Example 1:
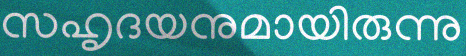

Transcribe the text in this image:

സഹൃദയനുമായിരുന്നു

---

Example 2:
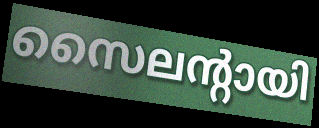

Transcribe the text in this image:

സൈലന്റായി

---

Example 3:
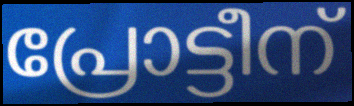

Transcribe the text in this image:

പ്രോട്ടീന്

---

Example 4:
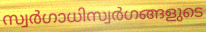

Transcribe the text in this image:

സ്വർഗാധിസ്വർഗങ്ങളുടെ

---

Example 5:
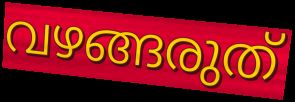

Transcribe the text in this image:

വഴങ്ങരുത്